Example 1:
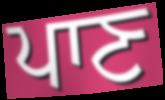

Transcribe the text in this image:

ਪਾਣ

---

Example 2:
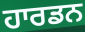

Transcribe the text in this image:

ਹਾਰਡਨ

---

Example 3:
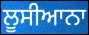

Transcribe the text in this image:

ਲੂਸੀਆਨਾ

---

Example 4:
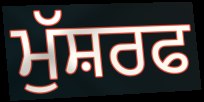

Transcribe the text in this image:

ਮੁੱਸ਼ਰਫ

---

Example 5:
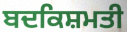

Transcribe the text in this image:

ਬਦਕਿਸ਼ਮਤੀ